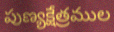
పుణ్యక్షేత్రముల